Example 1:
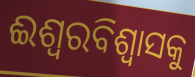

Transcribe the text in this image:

ଈଶ୍ୱରବିଶ୍ଵାସକୁ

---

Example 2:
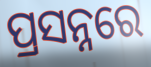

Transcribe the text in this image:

ପ୍ରସନ୍ନରେ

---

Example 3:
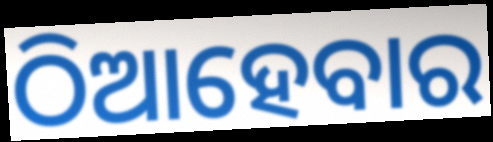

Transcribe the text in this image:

ଠିଆହେବାର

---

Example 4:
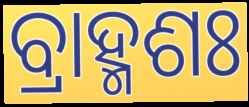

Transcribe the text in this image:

ବ୍ରାହ୍ମଶଃ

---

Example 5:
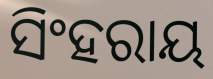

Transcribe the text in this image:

ସିଂହରାୟ